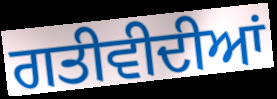
ਗਤੀਵੀਦੀਆਂ